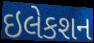
ઇલેકશન